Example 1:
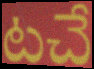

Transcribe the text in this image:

టచే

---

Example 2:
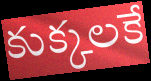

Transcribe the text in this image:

కుక్కలకే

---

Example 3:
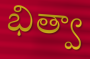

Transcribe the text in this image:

భిత్వా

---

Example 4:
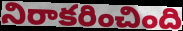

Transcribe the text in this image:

నిరాకరించింది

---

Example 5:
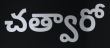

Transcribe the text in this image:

చత్వారో